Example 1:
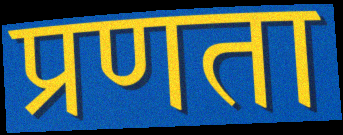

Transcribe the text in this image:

प्रणता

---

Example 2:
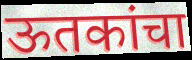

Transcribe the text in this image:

ऊतकांचा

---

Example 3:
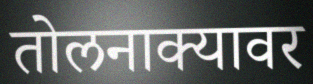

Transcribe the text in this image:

तोलनाक्यावर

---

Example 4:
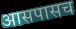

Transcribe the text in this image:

आसपासच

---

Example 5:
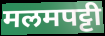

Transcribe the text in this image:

मलमपट्टी